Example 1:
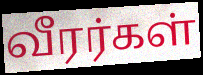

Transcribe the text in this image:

வீரர்கள்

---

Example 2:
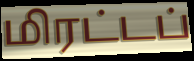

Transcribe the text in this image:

மிரட்டப்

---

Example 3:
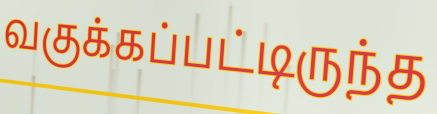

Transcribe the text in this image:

வகுக்கப்பட்டிருந்த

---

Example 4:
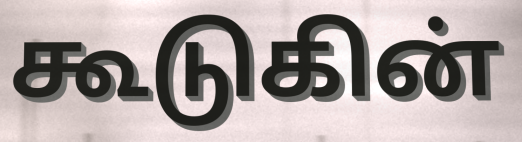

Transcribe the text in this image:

கூடுகின்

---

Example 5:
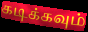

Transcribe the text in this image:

கடிக்கவும்